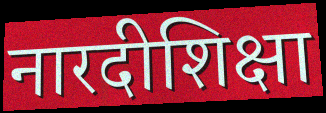
नारदीशिक्षा